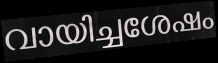
വായിച്ചശേഷം